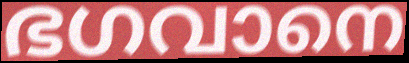
ഭഗവാനെ